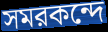
সমরকন্দে